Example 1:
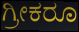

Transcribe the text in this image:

ಗ್ರೀಕರೂ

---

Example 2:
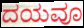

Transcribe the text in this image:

ದಯವೂ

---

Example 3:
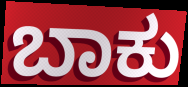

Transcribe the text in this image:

ಬಾಕು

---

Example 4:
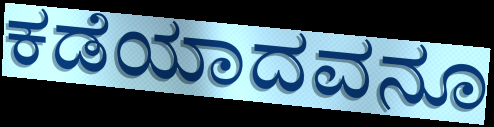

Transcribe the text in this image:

ಕಡೆಯಾದವನೂ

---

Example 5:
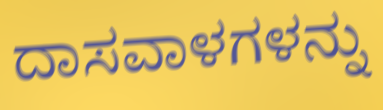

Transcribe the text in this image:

ದಾಸವಾಳಗಳನ್ನು